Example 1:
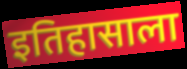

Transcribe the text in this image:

इतिहासाला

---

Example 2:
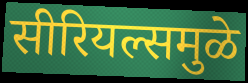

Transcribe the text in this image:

सीरियल्समुळे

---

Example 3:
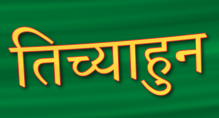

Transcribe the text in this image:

तिच्याहुन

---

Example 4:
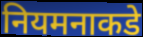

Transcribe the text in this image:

नियमनाकडे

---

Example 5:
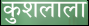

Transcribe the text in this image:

कुशलाला